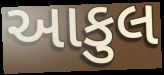
આકુલ